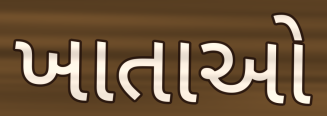
ખાતાઓ